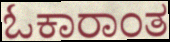
ಓಕಾರಾಂತ